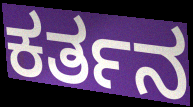
ಕರ್ತನ